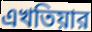
এখতিয়ার